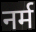
नर्म